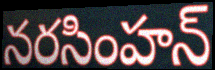
నరసింహన్